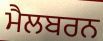
ਮੈਲਬਰਨ